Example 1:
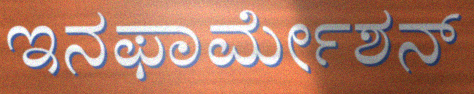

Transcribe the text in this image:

ಇನಫಾರ್ಮೇಶನ್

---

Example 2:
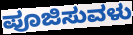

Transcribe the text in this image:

ಪೂಜಿಸುವಳು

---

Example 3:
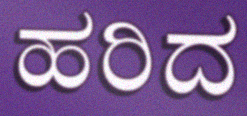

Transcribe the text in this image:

ಹರಿದ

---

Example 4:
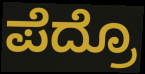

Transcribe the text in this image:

ಪೆದ್ರೊ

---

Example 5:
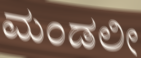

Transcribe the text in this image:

ಮಂಡಲೀ